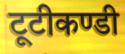
टूटीकण्डी